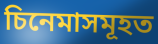
চিনেমাসমূহত